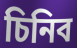
চিনিব